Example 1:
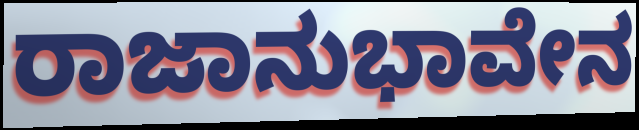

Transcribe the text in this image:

ರಾಜಾನುಭಾವೇನ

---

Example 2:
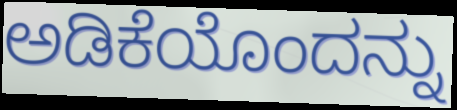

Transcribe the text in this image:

ಅಡಿಕೆಯೊಂದನ್ನು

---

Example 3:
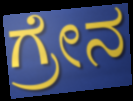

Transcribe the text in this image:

ಗ್ರೇನ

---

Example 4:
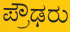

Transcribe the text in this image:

ಪ್ರೌಢರು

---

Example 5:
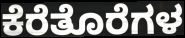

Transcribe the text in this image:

ಕೆರೆತೊರೆಗಳ